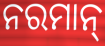
ନରମାନ୍